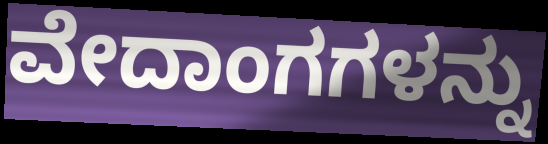
ವೇದಾಂಗಗಳನ್ನು